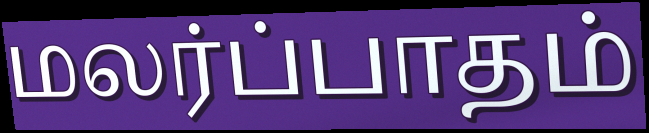
மலர்ப்பாதம்